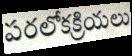
పరలోకక్రియలు